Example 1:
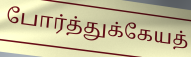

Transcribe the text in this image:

போர்த்துக்கேயத்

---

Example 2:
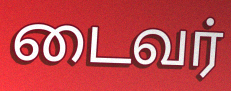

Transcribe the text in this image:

டைவர்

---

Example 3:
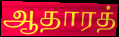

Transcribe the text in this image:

ஆதாரத்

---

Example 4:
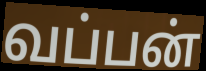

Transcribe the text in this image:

வப்பன்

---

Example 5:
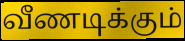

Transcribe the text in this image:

வீணடிக்கும்